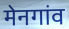
मेनगांव